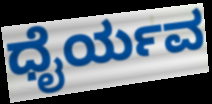
ಧೈರ್ಯವ